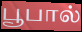
பூபால்